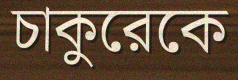
চাকুরেকে